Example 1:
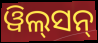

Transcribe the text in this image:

ୱିଲ୍‌ସନ୍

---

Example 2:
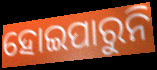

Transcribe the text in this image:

ହୋଇପାରୁନି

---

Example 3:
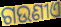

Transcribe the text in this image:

ଗଉଣୀଏ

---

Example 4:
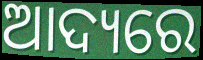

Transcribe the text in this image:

ଆଦ୍ୟରେ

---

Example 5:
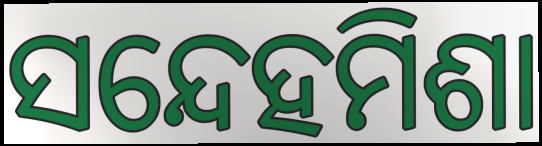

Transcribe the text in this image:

ସନ୍ଦେହମିଶା